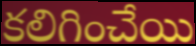
కలిగించేయి